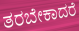
ತರಬೇಕಾದರೆ